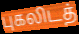
புகலிடத்